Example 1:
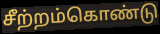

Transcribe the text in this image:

சீற்றம்கொண்டு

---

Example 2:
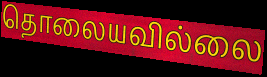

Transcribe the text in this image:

தொலையவில்லை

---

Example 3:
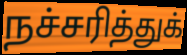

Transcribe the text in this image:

நச்சரித்துக்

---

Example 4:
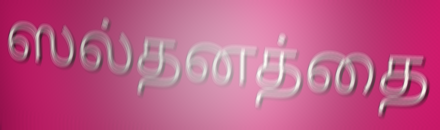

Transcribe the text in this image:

ஸல்தனத்தை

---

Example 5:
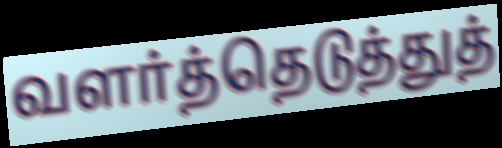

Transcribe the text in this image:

வளர்த்தெடுத்துத்